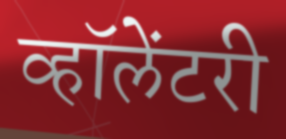
व्हॉलेंटरी